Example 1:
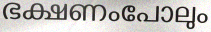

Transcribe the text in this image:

ഭക്ഷണംപോലും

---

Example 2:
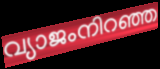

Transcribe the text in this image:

വ്യാജംനിറഞ്ഞ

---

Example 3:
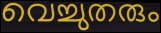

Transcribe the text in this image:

വെച്ചുതരും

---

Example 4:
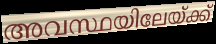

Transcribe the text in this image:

അവസ്ഥയിലേയ്ക്ക്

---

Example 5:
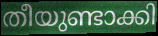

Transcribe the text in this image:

തീയുണ്ടാക്കി